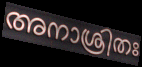
അനാശ്രിതഃ